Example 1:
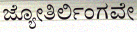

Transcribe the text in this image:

ಜ್ಯೋತಿರ್ಲಿಂಗವೇ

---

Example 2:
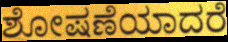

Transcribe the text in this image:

ಶೋಷಣೆಯಾದರೆ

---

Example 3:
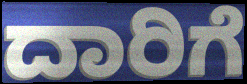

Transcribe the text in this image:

ದಾರಿಗೆ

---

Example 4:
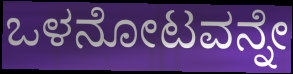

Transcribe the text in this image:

ಒಳನೋಟವನ್ನೇ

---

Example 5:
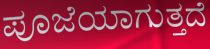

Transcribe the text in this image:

ಪೂಜೆಯಾಗುತ್ತದೆ